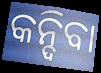
କନ୍ଦିବା